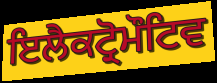
ਇਲੈਕਟ੍ਰੋਮੌਟਿਵ